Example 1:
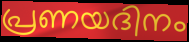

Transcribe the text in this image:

പ്രണയദിനം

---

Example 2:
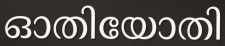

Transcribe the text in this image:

ഓതിയോതി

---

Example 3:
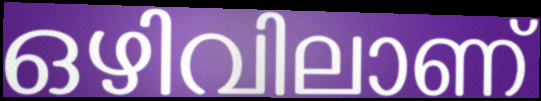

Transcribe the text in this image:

ഒഴിവിലാണ്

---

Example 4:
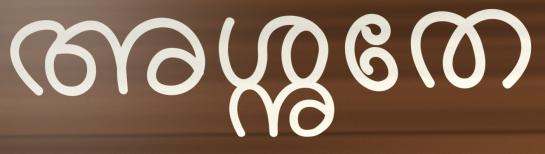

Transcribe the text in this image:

അശ്നുതേ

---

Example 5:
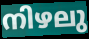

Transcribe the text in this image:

നിഴലു